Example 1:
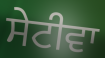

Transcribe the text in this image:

ਸੇਟੀਵਾ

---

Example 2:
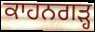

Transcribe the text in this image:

ਕਾਹਨਗੜ੍ਹ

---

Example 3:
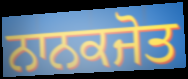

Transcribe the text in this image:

ਨਾਨਕਜੋਤ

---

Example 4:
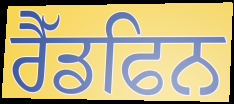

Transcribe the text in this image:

ਰੈੱਡਫਿਨ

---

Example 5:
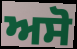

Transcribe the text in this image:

ਅਸੋ